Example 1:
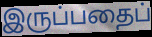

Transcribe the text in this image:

இருப்பதைப்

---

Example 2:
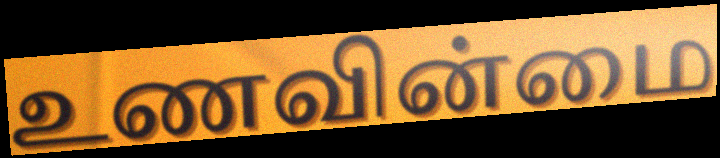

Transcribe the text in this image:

உணவின்மை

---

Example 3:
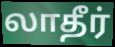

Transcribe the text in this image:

லாதீர்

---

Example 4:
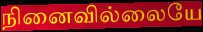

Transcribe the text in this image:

நினைவில்லையே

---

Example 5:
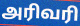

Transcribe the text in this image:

அரிவரி